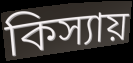
কিস্যায়